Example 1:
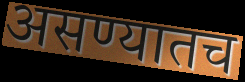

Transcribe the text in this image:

असण्यातच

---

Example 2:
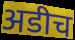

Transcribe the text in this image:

अडीच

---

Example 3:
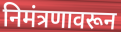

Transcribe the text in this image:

निमंत्रणावरून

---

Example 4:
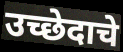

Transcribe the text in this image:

उच्छेदाचे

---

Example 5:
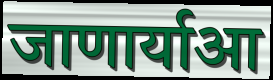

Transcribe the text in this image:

जाणार्याआ